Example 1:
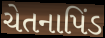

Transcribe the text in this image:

ચેતનાપિંડ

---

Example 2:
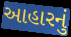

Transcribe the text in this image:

આહારનું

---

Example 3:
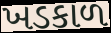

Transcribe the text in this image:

ખડકાળ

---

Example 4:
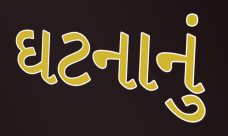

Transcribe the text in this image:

ઘટનાનું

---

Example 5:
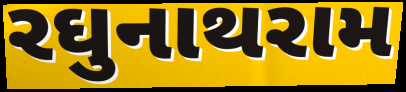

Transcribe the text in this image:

રઘુનાથરામ